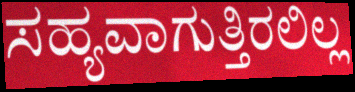
ಸಹ್ಯವಾಗುತ್ತಿರಲಿಲ್ಲ